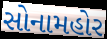
સોનામહોર